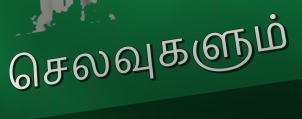
செலவுகளும்